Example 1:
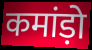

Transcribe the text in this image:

कमांड़ो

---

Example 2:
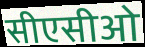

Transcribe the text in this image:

सीएसीओ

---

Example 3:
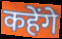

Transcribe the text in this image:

कहेंगे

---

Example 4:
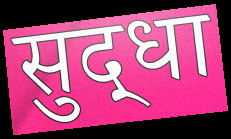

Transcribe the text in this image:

सुद्धा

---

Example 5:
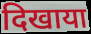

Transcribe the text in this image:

दिखाया